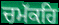
ਚਮੱਕਹਿ